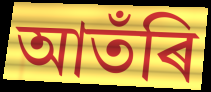
আতঁৰি